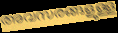
അവസരങ്ങളുള്ള